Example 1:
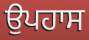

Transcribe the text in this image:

ਉਪਹਾਸ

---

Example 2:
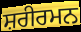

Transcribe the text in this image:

ਸ਼ਰੀਰਮਨ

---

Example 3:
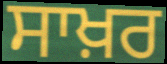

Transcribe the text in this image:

ਸਾਖ਼ਰ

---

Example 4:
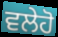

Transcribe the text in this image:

ਵਲੇਹੋ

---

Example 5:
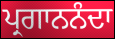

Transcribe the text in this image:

ਪ੍ਰਗਾਨਨੰਦਾ